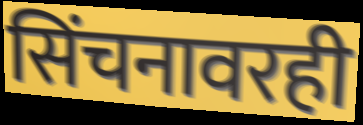
सिंचनावरही